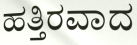
ಹತ್ತಿರವಾದ